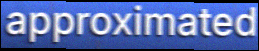
approximated